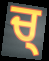
ਚ੍